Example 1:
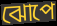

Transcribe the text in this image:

ঝোপে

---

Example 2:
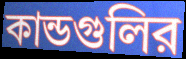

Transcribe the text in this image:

কান্ডগুলির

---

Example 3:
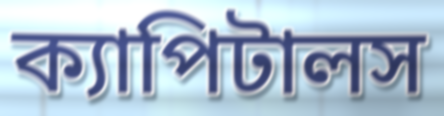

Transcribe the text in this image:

ক্যাপিটালস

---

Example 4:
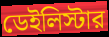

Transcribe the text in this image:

ডেইলিস্টার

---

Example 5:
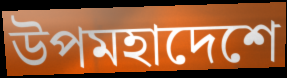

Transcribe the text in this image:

উপমহাদেশে